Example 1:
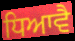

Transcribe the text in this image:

ਧਿਆਵੈ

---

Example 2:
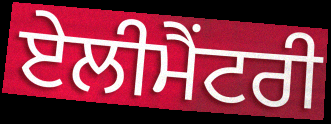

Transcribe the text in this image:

ਏਲੀਮੈਂਟਰੀ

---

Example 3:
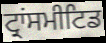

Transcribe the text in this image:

ਟ੍ਰਾਂਸਮੀਟਿਡ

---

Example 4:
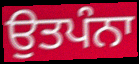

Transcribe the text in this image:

ਉਤਪੰਨਾ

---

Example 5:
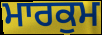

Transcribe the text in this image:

ਮਾਰਕੁਮ